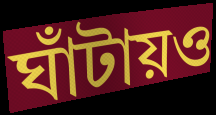
ঘাঁটায়ও